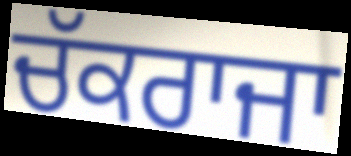
ਚੱਕਰਾਜਾ